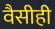
वैसीही